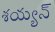
శయ్యన్